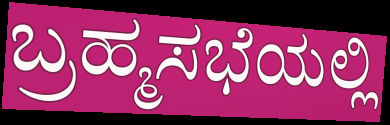
ಬ್ರಹ್ಮಸಭೆಯಲ್ಲಿ